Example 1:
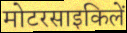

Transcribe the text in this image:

मोटरसाइकिलें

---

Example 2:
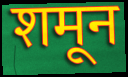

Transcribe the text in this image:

शमून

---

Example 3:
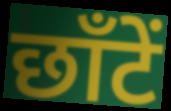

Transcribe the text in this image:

छाँटें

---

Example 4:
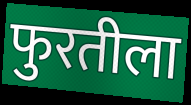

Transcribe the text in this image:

फुरतीला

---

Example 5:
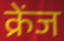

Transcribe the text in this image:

क्रेंज